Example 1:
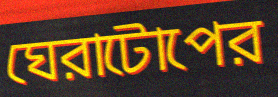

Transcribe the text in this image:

ঘেরাটোপের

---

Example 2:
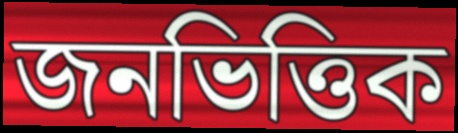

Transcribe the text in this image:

জনভিত্তিক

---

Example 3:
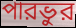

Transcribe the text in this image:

পারভুর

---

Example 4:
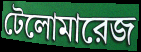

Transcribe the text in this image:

টেলোমারেজ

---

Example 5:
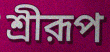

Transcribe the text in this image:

শ্রীরূপ